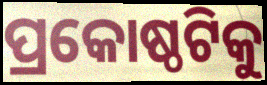
ପ୍ରକୋଷ୍ଠଟିକୁ